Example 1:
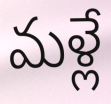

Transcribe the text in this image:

మళ్లే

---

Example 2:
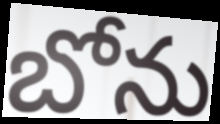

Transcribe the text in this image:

బోను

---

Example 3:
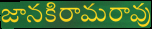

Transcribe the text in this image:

జానకిరామరావు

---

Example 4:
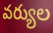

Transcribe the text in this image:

వర్యుల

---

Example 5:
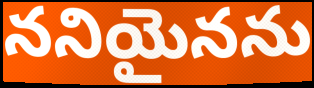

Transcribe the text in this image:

ననియైనను